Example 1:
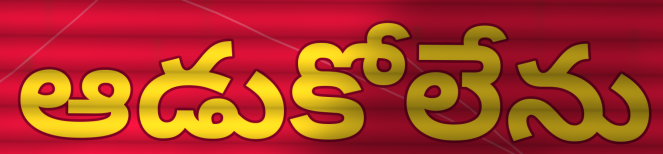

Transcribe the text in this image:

ఆడుకోలేను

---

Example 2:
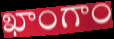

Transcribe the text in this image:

ఖాంగాం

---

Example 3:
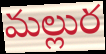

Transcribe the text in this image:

మల్లుర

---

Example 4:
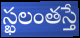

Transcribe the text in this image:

స్ఖలంతస్తే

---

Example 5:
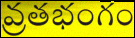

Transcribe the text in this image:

వ్రతభంగం